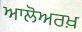
ਆਲੋਅਰਖ਼